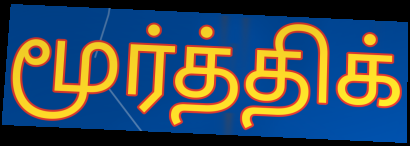
மூர்த்திக்